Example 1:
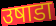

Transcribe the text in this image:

उषाडा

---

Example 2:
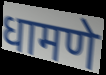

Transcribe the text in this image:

धामणे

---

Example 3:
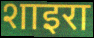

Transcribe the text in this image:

शाइरा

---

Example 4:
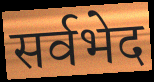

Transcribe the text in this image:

सर्वभेद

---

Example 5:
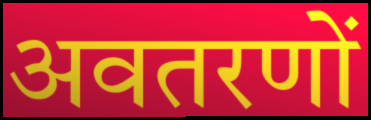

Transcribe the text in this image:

अवतरणों